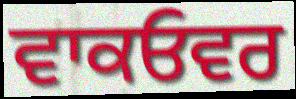
ਵਾਕਓਵਰ